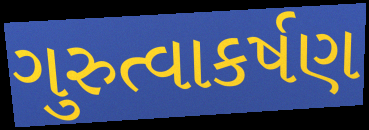
ગુરુત્વાકર્ષણ